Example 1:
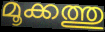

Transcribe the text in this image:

മൂക്കത്തു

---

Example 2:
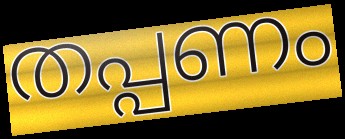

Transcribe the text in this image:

തപ്പണം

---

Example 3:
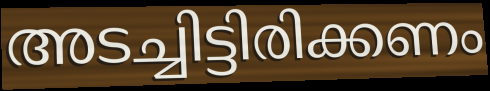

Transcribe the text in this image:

അടച്ചിട്ടിരിക്കണം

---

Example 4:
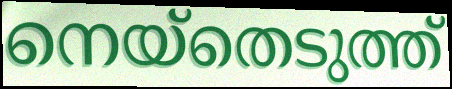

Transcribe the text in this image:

നെയ്തെടുത്ത്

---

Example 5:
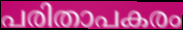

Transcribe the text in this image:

പരിതാപകരം